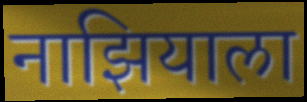
नाझियाला